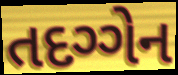
તદગ્ગેન